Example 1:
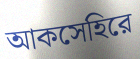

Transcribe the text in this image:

আকসেহিরে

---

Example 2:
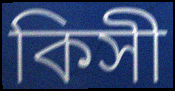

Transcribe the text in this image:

কিসী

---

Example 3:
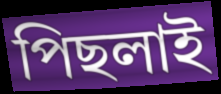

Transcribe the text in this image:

পিছলাই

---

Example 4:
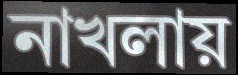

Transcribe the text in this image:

নাখলায়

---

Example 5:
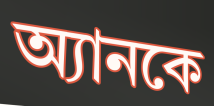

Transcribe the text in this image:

অ্যানকে